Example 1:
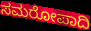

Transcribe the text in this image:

ಸಮರೋಪಾದಿ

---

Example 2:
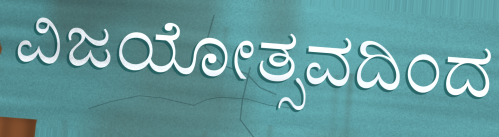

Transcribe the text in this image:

ವಿಜಯೋತ್ಸವದಿಂದ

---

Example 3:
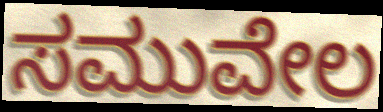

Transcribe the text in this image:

ಸಮುವೇಲ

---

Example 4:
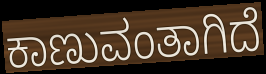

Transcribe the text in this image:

ಕಾಣುವಂತಾಗಿದೆ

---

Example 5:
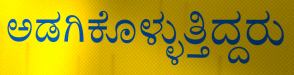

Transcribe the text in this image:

ಅಡಗಿಕೊಳ್ಳುತ್ತಿದ್ದರು